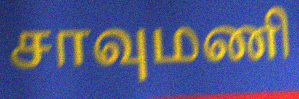
சாவுமணி